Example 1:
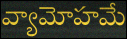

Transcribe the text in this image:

వ్యామోహమే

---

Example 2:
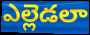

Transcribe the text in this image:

ఎల్లెడలా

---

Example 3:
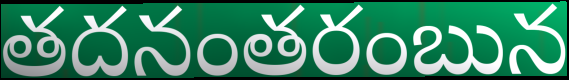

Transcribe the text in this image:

తదనంతరంబున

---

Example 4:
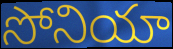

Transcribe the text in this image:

సోనియా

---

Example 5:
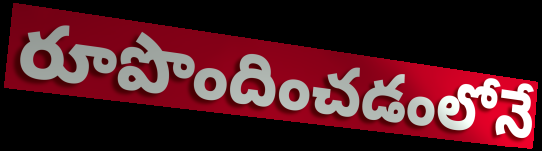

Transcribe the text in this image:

రూపొందించడంలోనే